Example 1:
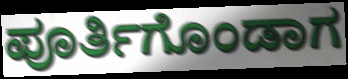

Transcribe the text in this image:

ಪೂರ್ತಿಗೊಂಡಾಗ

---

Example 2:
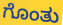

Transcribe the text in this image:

ಗೊಂತು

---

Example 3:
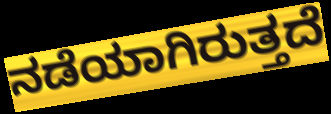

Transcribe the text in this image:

ನಡೆಯಾಗಿರುತ್ತದೆ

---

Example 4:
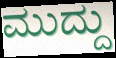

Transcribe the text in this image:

ಮುದ್ದು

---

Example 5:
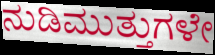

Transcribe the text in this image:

ನುಡಿಮುತ್ತುಗಳೇ